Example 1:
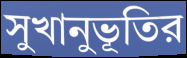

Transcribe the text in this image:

সুখানুভূতির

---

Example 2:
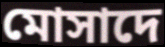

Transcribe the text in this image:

মোসাদে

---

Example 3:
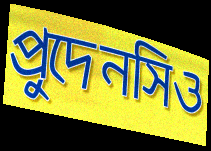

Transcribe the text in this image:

প্রুদেনসিও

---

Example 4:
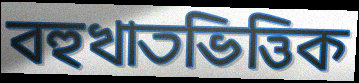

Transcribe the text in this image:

বহুখাতভিত্তিক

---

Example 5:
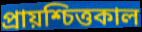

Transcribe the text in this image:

প্রায়শ্চিত্তকাল